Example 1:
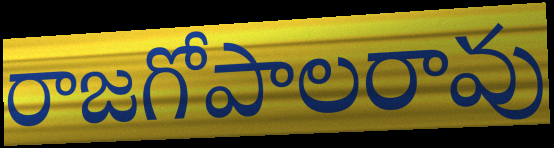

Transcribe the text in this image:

రాజగోపాలరావు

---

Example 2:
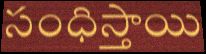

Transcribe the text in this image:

సంధిస్తాయి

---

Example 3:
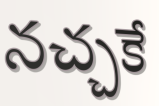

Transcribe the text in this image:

నచ్చకే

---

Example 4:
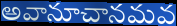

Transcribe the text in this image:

అవానూచానమవ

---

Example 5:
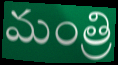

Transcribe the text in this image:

మంత్రి